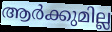
ആർക്കുമില്ല